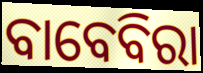
ବାବେବିରା